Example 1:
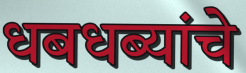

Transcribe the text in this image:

धबधब्यांचे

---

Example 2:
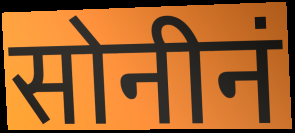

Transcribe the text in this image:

सोनीनं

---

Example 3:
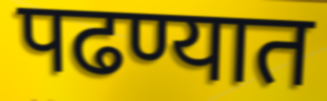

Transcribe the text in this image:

पढण्यात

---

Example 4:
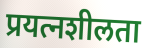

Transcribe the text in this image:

प्रयत्नशीलता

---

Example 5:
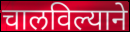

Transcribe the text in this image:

चालविल्याने